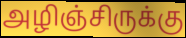
அழிஞ்சிருக்கு